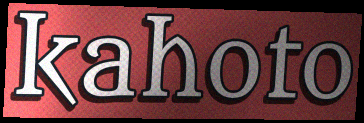
kahoto